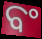
ବଂ